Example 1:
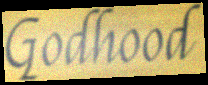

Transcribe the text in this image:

Godhood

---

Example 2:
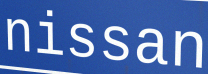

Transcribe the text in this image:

nissan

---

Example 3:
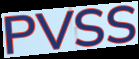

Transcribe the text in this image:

PVSS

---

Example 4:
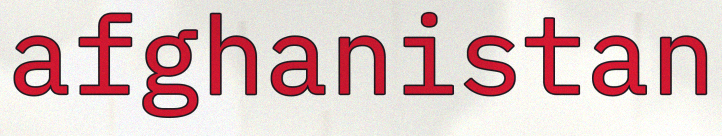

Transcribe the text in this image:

afghanistan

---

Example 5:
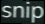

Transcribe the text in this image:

snip